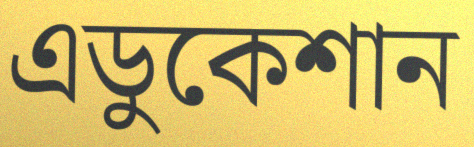
এডুকেশান